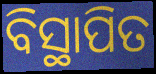
ବିସ୍ଥାପିତ